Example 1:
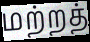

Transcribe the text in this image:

மற்றத்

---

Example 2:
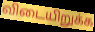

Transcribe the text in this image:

விடையிறுக்க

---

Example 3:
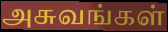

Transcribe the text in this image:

அசுவங்கள்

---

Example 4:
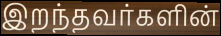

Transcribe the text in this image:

இறந்தவர்களின்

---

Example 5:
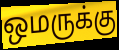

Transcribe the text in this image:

ஒமருக்கு